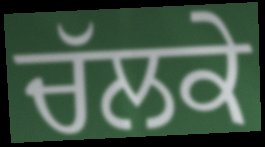
ਚੱਲਕੇ